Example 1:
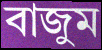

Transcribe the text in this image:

বাজুম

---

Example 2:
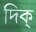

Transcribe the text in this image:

দিক্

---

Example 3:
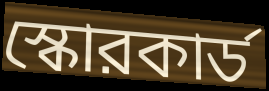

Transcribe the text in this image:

স্কোরকার্ড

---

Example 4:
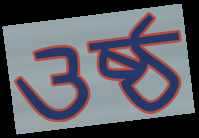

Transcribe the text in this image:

ওষ্ঠ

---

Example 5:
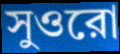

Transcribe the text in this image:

সুওরো